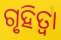
ଗୃହିତ୍ବା